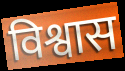
विश्वास